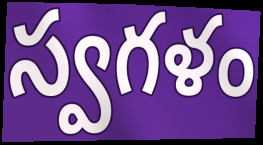
స్వగళం